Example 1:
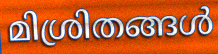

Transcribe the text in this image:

മിശ്രിതങ്ങൾ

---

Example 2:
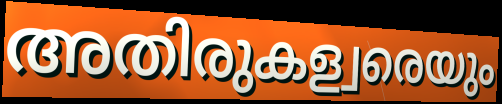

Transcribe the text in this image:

അതിരുകള്വരെയും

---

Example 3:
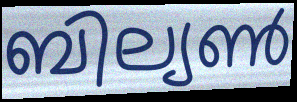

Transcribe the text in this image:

ബില്യൺ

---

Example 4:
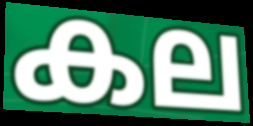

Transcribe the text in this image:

കല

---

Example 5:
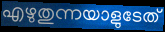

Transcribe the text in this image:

എഴുതുന്നയാളുടേത്